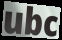
ubc